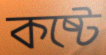
কষ্টে